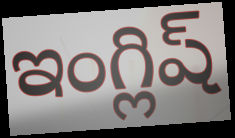
ఇంగ్లిష్